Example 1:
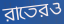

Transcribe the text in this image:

রাতেরও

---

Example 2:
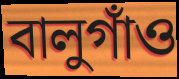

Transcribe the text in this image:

বালুগাঁও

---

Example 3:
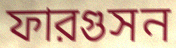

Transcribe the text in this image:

ফারগুসন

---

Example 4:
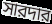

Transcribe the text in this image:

সারদার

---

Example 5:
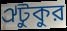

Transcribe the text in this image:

ঐটুকুর